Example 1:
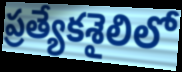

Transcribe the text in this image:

ప్రత్యేకశైలిలో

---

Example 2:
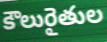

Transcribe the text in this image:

కౌలురైతుల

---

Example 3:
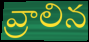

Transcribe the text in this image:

వ్రాలిన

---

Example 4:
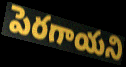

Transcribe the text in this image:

పెరగాయని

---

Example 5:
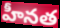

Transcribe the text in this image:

హీనత